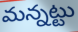
మన్నట్టు